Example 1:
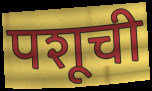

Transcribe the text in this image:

पशूची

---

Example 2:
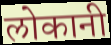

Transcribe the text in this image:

लोकानी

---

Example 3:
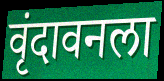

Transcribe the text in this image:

वृंदावनला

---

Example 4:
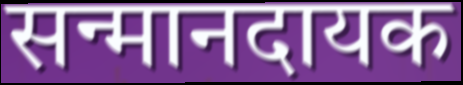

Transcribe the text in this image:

सन्मानदायक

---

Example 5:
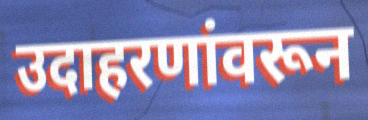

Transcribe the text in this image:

उदाहरणांवरून